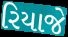
રિયાજે